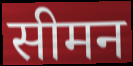
सीमन